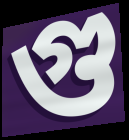
গু